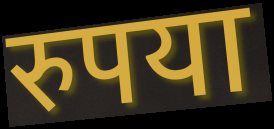
रुपया